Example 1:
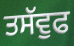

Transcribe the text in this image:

ਤਸੱਵੁਫ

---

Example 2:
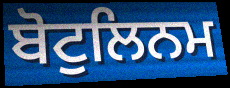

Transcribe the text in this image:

ਬੋਟੁਲਿਨਮ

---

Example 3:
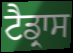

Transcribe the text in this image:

ਟੈਡ੍ਰਾਸ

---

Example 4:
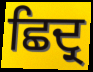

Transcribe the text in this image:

ਛਿਦ੍ਰ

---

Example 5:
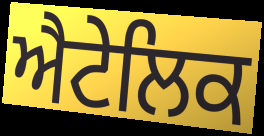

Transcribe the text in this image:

ਐਟੇਲਿਕ